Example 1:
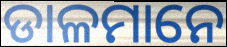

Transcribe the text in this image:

ଡାଳମାନେ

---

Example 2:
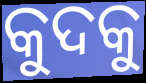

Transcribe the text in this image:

କୁଦକୁ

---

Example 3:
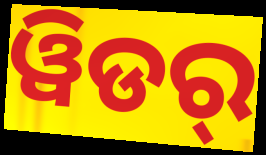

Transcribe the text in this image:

ୱିଡର୍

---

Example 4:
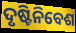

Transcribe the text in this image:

ଦୃଷ୍ଟିନିବେଶ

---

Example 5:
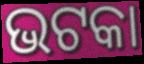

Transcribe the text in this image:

ଭଟକା